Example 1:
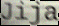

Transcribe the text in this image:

Jija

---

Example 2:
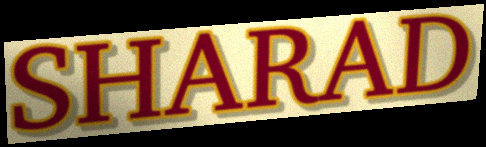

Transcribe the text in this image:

SHARAD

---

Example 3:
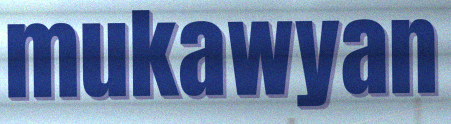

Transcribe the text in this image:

mukawyan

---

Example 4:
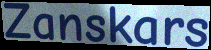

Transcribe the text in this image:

Zanskars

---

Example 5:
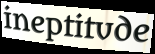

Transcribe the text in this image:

ineptitude